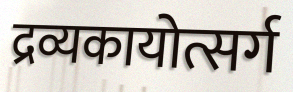
द्रव्यकायोत्सर्ग